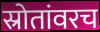
स्रोतांवरच